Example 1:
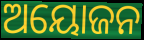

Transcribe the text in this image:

ଅୟୋଜନ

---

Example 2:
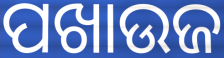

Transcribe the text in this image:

ପଖାଉଜ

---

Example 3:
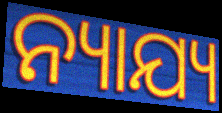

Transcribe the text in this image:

ନ୍ୟାଯ୍ୟ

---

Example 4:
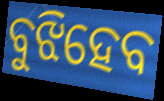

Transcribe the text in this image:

ବୁଝିହେବ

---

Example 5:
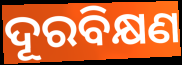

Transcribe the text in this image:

ଦୂରବିକ୍ଷଣ